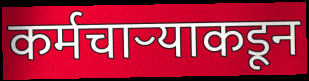
कर्मचाऱ्याकडून